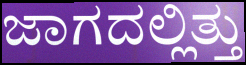
ಜಾಗದಲ್ಲಿತ್ತು